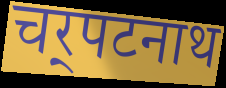
चर्पटनाथ